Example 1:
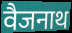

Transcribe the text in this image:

वैजनाथ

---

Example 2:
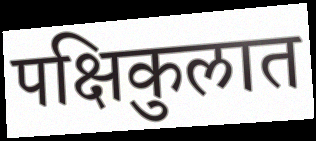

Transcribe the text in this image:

पक्षिकुलात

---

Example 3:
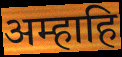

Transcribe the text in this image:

अम्हाहि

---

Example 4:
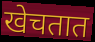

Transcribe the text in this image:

खेचतात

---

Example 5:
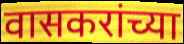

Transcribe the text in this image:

वासकरांच्या